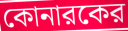
কোনারকের